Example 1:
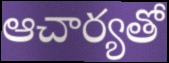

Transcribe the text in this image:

ఆచార్యతో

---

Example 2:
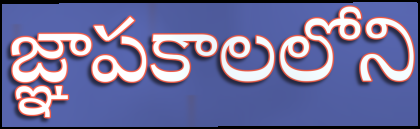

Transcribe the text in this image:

జ్ఞాపకాలలోని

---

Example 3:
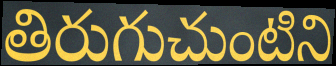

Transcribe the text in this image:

తిరుగుచుంటిని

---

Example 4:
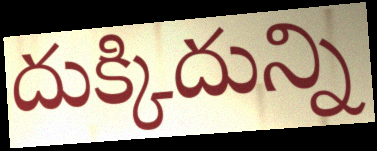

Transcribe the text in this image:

దుక్కిదున్ని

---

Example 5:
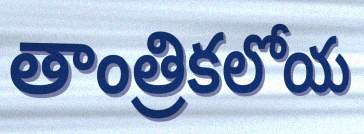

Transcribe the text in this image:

తాంత్రికలోయ